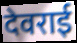
देवराई